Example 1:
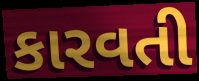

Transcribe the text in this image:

કારવતી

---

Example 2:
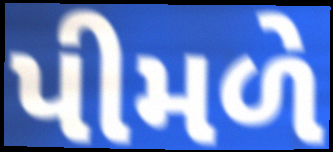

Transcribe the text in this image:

પીમળે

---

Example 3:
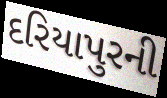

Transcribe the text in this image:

દરિયાપુરની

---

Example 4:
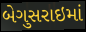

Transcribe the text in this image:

બેગુસરાઇમાં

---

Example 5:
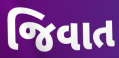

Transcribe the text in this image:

જિવાત